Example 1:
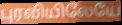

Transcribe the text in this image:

புரவியிலேயே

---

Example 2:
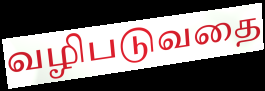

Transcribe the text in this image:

வழிபடுவதை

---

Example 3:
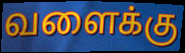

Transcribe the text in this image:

வளைக்கு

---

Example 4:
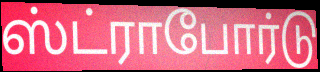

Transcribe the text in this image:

ஸ்ட்ராபோர்டு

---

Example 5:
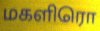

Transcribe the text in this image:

மகளிரொ